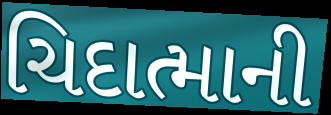
ચિદાત્માની